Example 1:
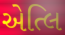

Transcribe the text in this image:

એત્લિ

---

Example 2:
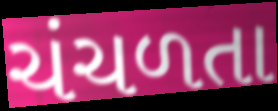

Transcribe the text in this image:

ચંચળતા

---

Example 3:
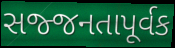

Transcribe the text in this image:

સજ્જનતાપૂર્વક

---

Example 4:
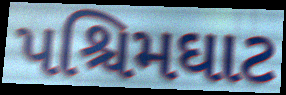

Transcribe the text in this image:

પશ્ચિમઘાટ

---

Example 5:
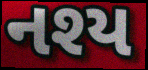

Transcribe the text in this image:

નશ્ય